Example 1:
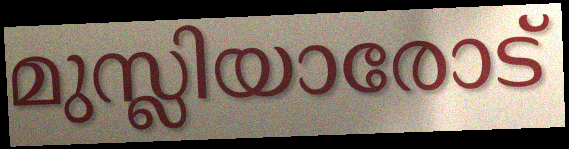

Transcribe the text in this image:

മുസ്ലിയാരോട്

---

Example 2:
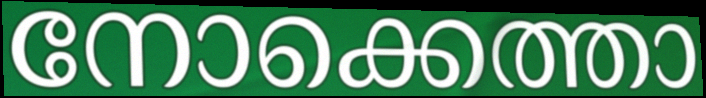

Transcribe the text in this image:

നോക്കെത്താ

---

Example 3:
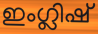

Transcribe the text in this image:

ഇംഗ്ലിഷ്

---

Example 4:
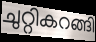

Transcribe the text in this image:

ചുറ്റികറങ്ങി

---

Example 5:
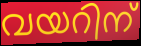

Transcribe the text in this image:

വയറിന്